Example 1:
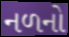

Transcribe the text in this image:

નળનો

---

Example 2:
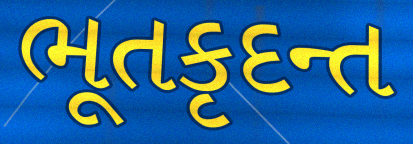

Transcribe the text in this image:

ભૂતકૃદન્ત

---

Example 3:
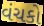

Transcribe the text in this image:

વંચકો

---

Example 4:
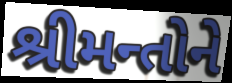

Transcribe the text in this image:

શ્રીમન્તોને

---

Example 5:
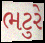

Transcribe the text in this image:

ભટુરે